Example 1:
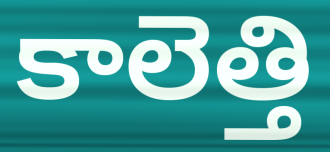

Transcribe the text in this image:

కాలెత్తి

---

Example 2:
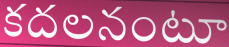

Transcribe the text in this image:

కదలనంటూ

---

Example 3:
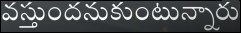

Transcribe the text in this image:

వస్తుందనుకుంటున్నారు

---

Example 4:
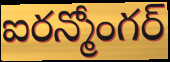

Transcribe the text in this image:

ఐరన్మోంగర్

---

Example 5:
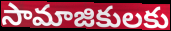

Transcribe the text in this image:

సామాజికులకు